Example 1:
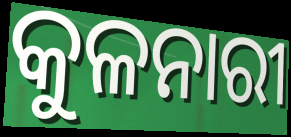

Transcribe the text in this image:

କୁଳନାରୀ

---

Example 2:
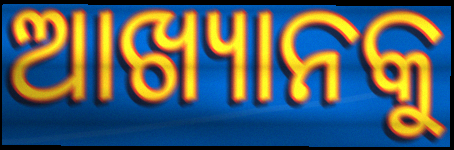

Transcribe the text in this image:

ଆଖ୍ୟାନକୁ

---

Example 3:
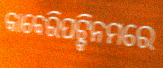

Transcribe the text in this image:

କାବେରିପଟ୍ଟିନମରେ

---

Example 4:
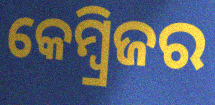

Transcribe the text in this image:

କେମ୍ୱ୍ରିଜର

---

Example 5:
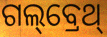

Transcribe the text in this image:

ଗଲ୍‌ବ୍ରେଥ୍